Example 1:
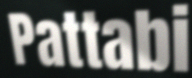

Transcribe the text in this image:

Pattabi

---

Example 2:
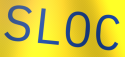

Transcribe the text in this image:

SLOC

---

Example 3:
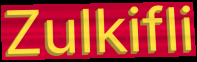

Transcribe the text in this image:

Zulkifli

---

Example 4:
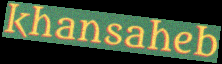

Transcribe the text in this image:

khansaheb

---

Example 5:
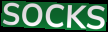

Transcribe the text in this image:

SOCKS